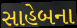
સાહેબના